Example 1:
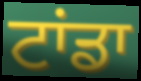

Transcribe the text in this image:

ਟਾਂਡਾ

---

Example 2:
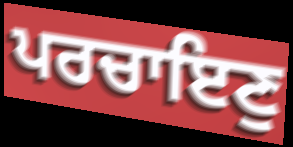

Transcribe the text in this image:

ਪਰਚਾਇਣੁ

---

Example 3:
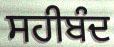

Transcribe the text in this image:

ਸਹੀਬੰਦ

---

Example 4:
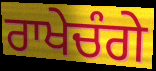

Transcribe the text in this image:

ਰਾਖੇਚੰਗੇ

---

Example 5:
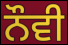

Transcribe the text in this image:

ਨੌਵੀ